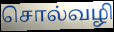
சொல்வழி